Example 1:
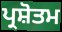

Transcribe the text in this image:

ਪ੍ਰਸ਼ੋਤਮ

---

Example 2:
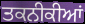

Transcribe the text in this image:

ਤਕਨੀਕੀਆਂ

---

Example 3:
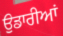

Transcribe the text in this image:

ਉੁਡਾਰੀਆਂ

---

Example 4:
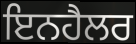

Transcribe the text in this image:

ਇਨਹੈਲਰ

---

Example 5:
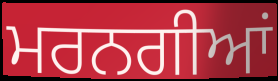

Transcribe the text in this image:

ਮਰਨਗੀਆਂ